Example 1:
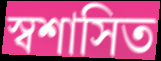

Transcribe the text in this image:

স্বশাসিত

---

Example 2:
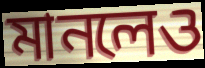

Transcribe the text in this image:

মানলেও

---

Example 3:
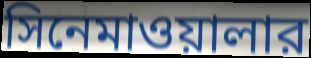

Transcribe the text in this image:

সিনেমাওয়ালার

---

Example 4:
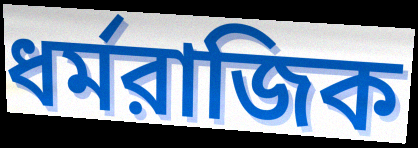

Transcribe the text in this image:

ধর্মরাজিক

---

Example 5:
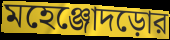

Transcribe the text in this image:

মহেঞ্জোদড়োর